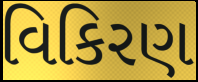
વિકિરણ